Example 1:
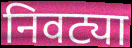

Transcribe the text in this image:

निवट्या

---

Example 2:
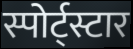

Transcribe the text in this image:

स्पोर्ट्स्टार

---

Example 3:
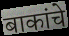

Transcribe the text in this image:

बाकांचे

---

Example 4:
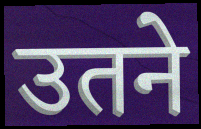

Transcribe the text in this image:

उतने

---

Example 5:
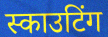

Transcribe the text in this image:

स्काउटिंग